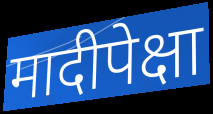
मादीपेक्षा